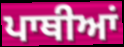
ਪਾਥੀਆਂ